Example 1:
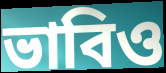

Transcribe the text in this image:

ভাবিও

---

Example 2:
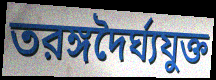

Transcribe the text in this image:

তরঙ্গদৈর্ঘ্যযুক্ত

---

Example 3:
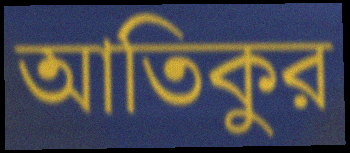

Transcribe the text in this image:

আতিকুর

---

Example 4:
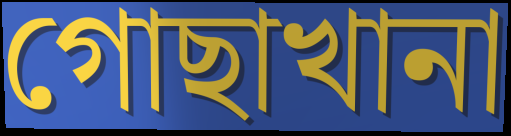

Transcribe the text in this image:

গোছাখানা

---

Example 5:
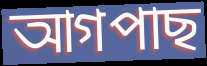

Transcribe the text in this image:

আগপাছ